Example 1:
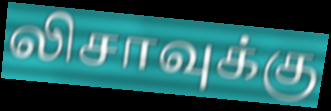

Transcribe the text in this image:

லிசாவுக்கு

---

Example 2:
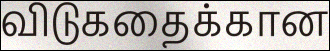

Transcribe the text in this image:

விடுகதைக்கான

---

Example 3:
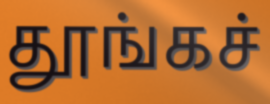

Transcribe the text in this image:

தூங்கச்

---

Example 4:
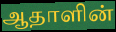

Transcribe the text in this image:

ஆதாளின்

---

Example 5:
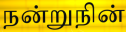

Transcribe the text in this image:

நன்றுநின்